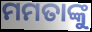
ମମତାଙ୍କୁ